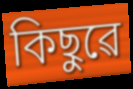
কিছুৱে